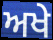
ਅਖੇ